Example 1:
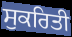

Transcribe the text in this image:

ਸੁਕਰਿਤੀ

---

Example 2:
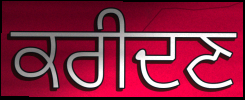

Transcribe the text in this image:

ਕਰੀਦਣ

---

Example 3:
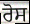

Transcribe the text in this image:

ਰੋਸ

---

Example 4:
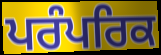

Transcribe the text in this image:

ਪਰੰਪਰਿਕ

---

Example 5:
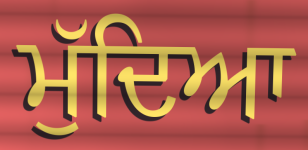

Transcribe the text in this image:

ਮੁੱਦਿਆ